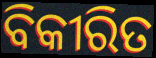
ବିକୀରିତ